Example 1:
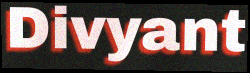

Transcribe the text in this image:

Divyant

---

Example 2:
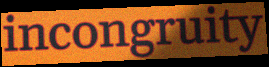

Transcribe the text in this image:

incongruity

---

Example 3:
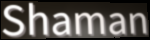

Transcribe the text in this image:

Shaman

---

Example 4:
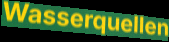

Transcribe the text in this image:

Wasserquellen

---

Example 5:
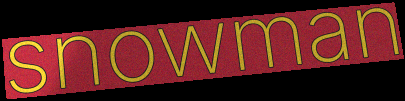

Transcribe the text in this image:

snowman